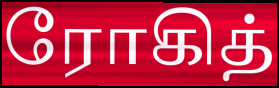
ரோகித்